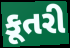
કૂતરી